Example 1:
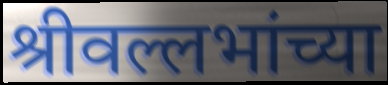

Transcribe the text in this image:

श्रीवल्लभांच्या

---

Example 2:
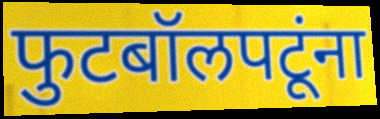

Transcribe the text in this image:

फुटबॉलपटूंना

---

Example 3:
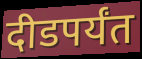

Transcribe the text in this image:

दीडपर्यंत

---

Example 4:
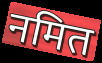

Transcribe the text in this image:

नमित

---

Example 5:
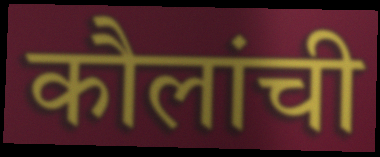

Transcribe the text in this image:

कौलांची